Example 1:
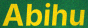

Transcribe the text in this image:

Abihu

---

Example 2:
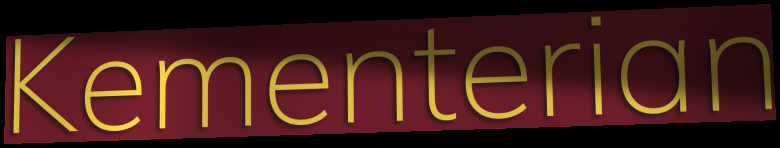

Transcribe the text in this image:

Kementerian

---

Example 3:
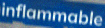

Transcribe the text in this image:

inflammable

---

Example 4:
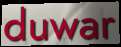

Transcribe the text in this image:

duwar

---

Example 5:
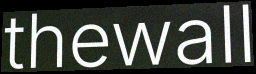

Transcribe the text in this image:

thewall